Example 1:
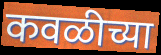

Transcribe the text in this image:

कवळीच्या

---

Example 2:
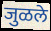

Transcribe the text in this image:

जुळले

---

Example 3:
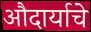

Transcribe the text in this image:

औदार्याचे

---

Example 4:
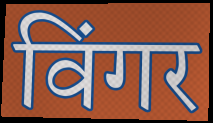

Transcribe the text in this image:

विंगर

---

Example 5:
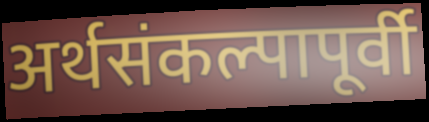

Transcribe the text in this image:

अर्थसंकल्पापूर्वी